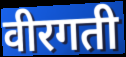
वीरगती